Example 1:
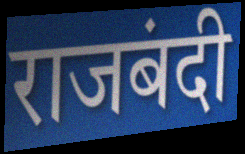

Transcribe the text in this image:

राजबंदी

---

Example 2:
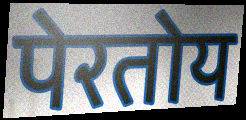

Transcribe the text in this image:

पेरतोय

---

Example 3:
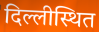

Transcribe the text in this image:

दिल्लीस्थित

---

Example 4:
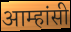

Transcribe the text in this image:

आम्हांसी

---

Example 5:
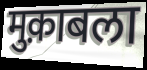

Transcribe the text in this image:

मुक़ाबला